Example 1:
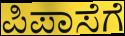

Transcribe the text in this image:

ಪಿಪಾಸೆಗೆ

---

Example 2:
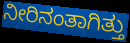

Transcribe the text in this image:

ನೀರಿನಂತಾಗಿತ್ತು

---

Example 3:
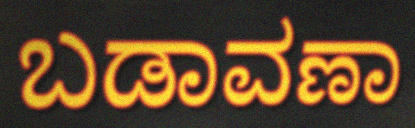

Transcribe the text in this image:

ಬಡಾವಣಾ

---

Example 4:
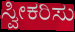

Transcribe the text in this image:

ಸ್ವೀಕರಿಸು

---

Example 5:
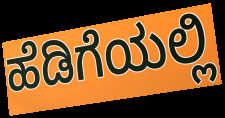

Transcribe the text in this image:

ಹೆಡಿಗೆಯಲ್ಲಿ